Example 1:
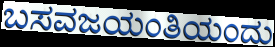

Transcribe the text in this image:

ಬಸವಜಯಂತಿಯಂದು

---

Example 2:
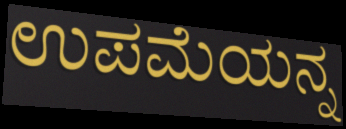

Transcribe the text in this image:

ಉಪಮೆಯನ್ನ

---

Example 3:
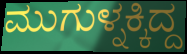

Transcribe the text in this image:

ಮುಗುಳ್ನಕ್ಕಿದ್ದ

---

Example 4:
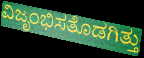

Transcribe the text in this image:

ವಿಜೃಂಭಿಸತೊಡಗಿತ್ತು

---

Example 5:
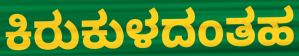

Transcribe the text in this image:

ಕಿರುಕುಳದಂತಹ